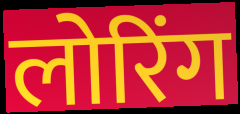
लोरिंग